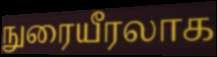
நுரையீரலாக